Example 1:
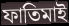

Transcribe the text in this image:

ফাতিমাই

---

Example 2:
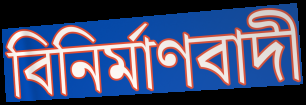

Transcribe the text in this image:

বিনিৰ্মাণবাদী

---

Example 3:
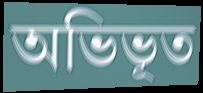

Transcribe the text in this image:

অভিভূত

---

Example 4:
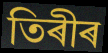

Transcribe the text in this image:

তিৰীৰ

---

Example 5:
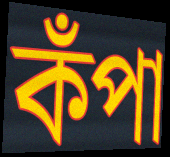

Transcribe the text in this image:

কঁপা